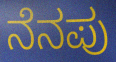
ನೆನಪು